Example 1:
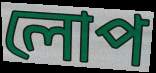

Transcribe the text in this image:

লোপ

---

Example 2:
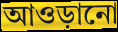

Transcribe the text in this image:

আওড়ানো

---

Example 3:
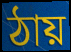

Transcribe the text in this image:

ঠায়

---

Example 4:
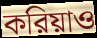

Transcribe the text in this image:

করিয়াও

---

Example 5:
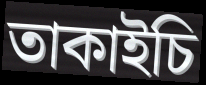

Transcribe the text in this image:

তাকাইচি